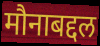
मौनाबद्दल